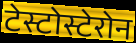
टेस्‍टोस्‍टेरोन